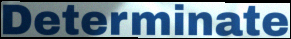
Determinate